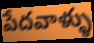
పేదవాళ్ళు